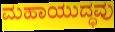
ಮಹಾಯುದ್ಧವು